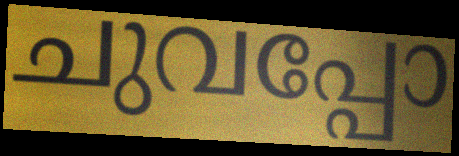
ചുവപ്പോ